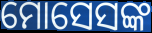
ମୋସେସଙ୍କ